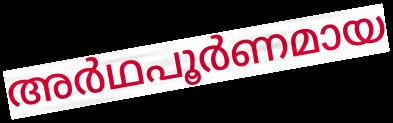
അർഥപൂർണമായ